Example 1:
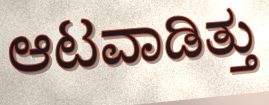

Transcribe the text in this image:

ಆಟವಾಡಿತ್ತು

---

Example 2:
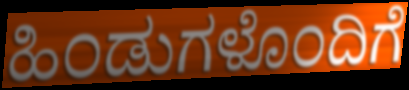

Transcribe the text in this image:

ಹಿಂಡುಗಳೊಂದಿಗೆ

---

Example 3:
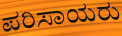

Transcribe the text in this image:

ಪರಿಸಾಯರು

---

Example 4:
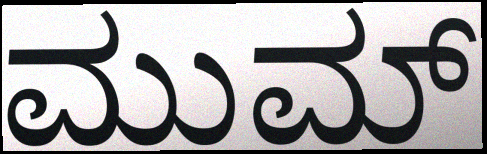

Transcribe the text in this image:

ಮುಮ್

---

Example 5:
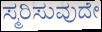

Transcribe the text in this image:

ಸ್ಮರಿಸುವುದೇ